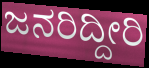
ಜನರಿದ್ದೀರಿ